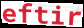
eftir